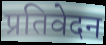
प्रतिवेदन